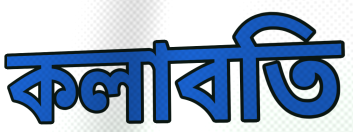
কলাবতি